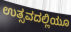
ಉತ್ಸವದಲ್ಲಿಯೂ